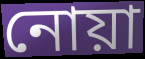
নোয়া